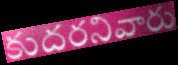
కుదరనివారు